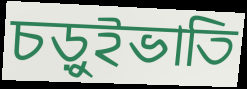
চড়ুইভাতি